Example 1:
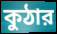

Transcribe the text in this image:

কুঠার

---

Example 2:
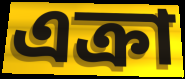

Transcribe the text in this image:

এক্রা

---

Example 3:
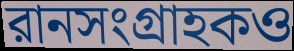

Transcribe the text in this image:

রানসংগ্রাহকও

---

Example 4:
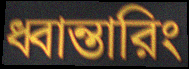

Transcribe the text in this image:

ধ্বান্তারিং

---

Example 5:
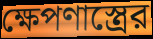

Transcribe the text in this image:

ক্ষেপণাস্ত্রের